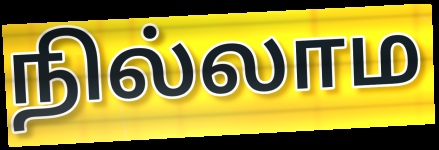
நில்லாம